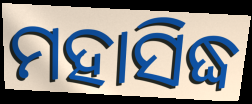
ମହାସିଦ୍ଧ